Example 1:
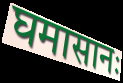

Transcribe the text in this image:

घमासानः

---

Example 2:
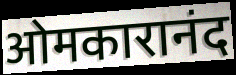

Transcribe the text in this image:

ओमकारानंद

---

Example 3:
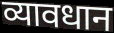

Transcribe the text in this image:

व्यावधान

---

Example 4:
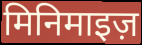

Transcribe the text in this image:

मिनिमाइज़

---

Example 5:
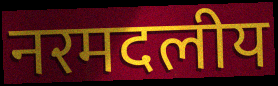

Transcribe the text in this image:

नरमदलीय